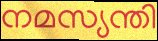
നമസ്യന്തി